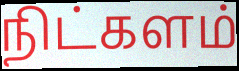
நிட்களம்